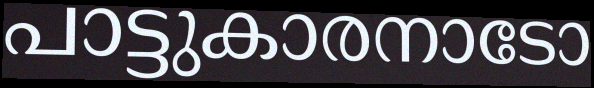
പാട്ടുകാരനാടോ